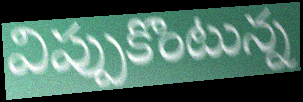
విప్పుకొంటున్న